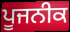
ਪੂਜਨੀਕ